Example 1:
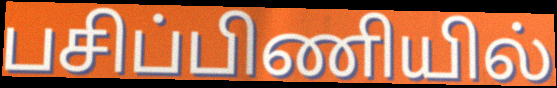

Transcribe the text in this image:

பசிப்பிணியில்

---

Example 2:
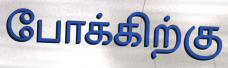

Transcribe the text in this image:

போக்கிற்கு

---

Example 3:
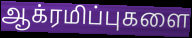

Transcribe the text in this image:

ஆக்ரமிப்புகளை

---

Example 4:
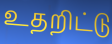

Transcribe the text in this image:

உதறிட்டு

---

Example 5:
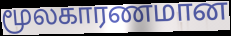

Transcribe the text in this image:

மூலகாரணமான